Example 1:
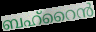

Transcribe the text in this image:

ബഹ്റൈൻ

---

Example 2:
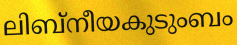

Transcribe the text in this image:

ലിബ്നീയകുടുംബം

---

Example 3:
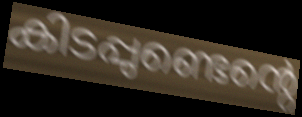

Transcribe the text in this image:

കിടപ്പുണ്ടെന്റെ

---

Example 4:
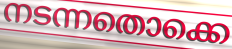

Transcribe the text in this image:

നടന്നതൊക്കെ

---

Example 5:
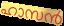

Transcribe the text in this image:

ഹാസൻ